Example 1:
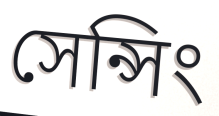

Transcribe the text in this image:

সেন্সিং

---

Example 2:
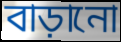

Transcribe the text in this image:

বাড়ানো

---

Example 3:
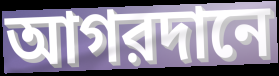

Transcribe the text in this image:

আগরদানে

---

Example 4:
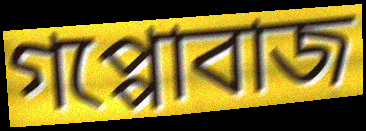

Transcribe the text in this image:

গপ্পোবাজ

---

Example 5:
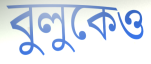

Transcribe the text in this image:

বুলুকেও